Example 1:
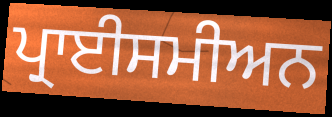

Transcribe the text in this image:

ਪ੍ਰਾਈਸਮੀਅਨ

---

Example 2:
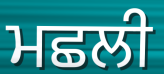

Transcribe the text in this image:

ਮਛਲੀ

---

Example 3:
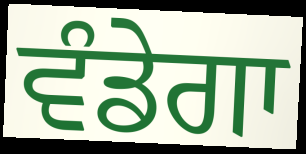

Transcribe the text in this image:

ਵੰਡੇਗਾ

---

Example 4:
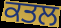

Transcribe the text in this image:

ਕਤਲ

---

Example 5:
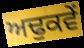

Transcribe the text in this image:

ਅਢੁਕਵੇਂ